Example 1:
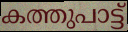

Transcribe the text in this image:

കത്തുപാട്ട്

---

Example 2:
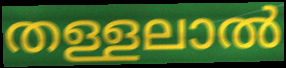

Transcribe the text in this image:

തള്ളലാൽ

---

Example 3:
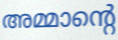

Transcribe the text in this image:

അമ്മാന്റെ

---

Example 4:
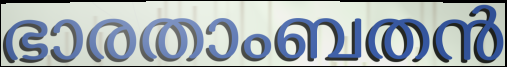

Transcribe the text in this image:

ഭാരതാംബതൻ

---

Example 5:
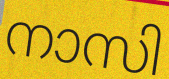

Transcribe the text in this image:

നാസി